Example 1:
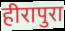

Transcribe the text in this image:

हीरापुरा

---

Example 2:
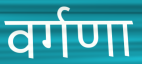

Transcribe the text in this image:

वर्गणा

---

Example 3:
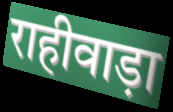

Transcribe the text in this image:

राहीवाड़ा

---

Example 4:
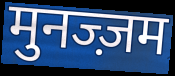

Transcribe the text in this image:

मुनज्ज़म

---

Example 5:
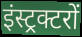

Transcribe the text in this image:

इंस्ट्रक्टरों